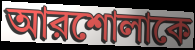
আরশোলাকে